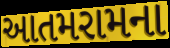
આતમરામના